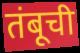
तंबूची